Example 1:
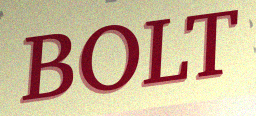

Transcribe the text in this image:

BOLT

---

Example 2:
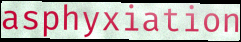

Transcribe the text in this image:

asphyxiation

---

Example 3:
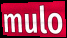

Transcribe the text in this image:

mulo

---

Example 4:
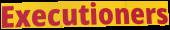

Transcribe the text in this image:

Executioners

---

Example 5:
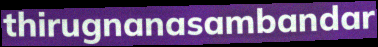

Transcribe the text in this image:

thirugnanasambandar